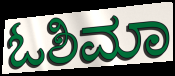
ಓಶಿಮಾ